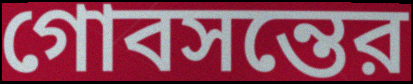
গোবসন্তের